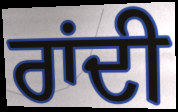
ਰਾਂਦੀ